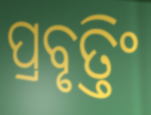
ପ୍ରବୃତ୍ତିଂ